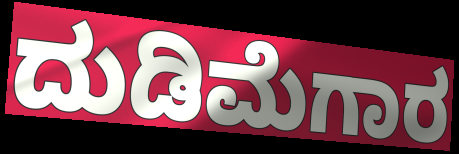
ದುಡಿಮೆಗಾರ